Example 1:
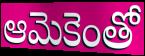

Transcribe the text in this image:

ఆమెకెంతో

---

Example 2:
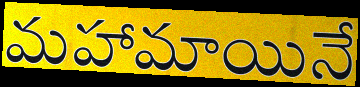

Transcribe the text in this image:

మహామాయినే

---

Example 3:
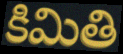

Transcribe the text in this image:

కిమితి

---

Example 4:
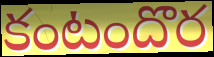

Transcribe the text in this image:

కంటందొర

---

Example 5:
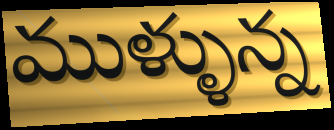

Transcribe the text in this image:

ముళ్ళున్న